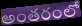
అంతరంలో